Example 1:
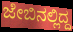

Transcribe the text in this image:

ಜೇಬಿನಲ್ಲಿದ್ದ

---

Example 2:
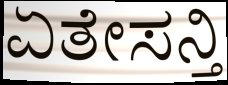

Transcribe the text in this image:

ಏತೇಸನ್ತಿ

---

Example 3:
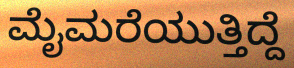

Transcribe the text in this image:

ಮೈಮರೆಯುತ್ತಿದ್ದೆ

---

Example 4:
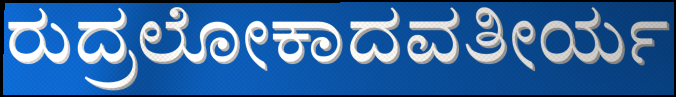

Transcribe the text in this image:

ರುದ್ರಲೋಕಾದವತೀರ್ಯ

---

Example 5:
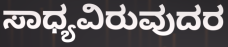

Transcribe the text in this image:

ಸಾಧ್ಯವಿರುವುದರ